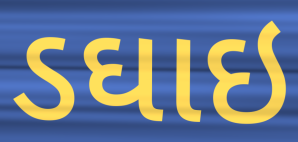
ડઘાઇ